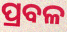
ପ୍ରବଳ